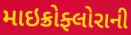
માઇક્રોફ્લોરાની